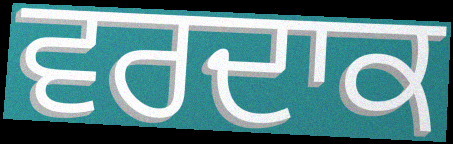
ਵਰਦਾਕ